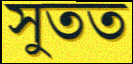
সুতত